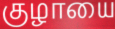
குழாயை